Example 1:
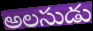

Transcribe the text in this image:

అలసుడు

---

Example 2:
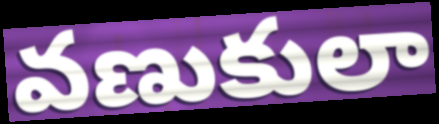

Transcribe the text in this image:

వణుకులా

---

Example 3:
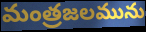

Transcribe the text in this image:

మంత్రజలమును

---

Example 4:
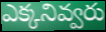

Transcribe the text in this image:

ఎక్కనివ్వరు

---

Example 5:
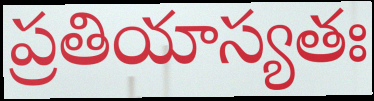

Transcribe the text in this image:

ప్రతియాస్యతః